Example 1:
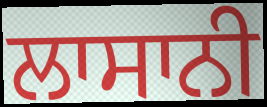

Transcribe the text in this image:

ਲਾਸਾਨੀ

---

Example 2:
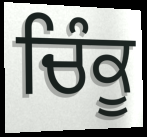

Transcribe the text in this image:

ਚਿੰਕੂ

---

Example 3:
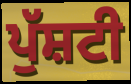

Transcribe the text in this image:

ਪੁੱਸ਼ਟੀ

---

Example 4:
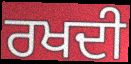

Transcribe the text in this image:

ਰਖਦੀ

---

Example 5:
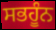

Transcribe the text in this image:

ਸਭਹੂੰਨ